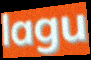
lagu